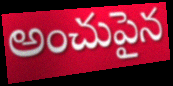
అంచుపైన